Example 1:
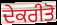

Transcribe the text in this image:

ਦੇਕਰੀਤੋ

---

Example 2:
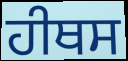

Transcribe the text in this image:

ਹੀਥਸ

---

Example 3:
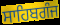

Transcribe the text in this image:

ਸਾਹਿਬਗੰਜ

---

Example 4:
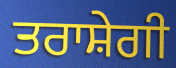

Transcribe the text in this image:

ਤਰਾਸ਼ੇਗੀ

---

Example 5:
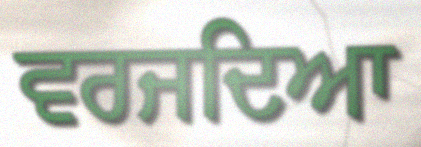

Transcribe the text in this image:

ਵਰਜਦਿਆ